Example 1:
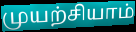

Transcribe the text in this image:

முயற்சியாம்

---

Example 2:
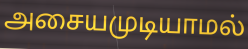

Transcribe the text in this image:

அசையமுடியாமல்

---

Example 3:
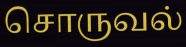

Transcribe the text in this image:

சொருவல்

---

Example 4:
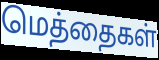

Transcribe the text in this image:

மெத்தைகள்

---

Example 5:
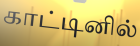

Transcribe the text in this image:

காட்டினில்